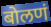
बोलणं